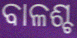
ବାଳଶ୍ଚ